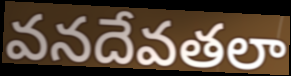
వనదేవతలా